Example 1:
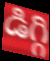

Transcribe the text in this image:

డిగ్గి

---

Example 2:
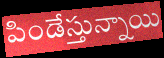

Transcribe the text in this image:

పిండేస్తున్నాయి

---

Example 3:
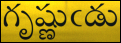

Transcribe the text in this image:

గృష్ణుఁడు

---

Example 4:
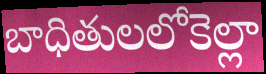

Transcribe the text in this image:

బాధితులలోకెల్లా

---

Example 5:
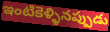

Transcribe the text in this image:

ఇంటికెళ్ళినప్పుడు